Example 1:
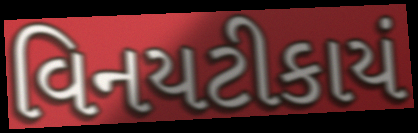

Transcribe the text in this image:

વિનયટીકાયં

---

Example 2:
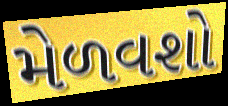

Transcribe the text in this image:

મેળવશો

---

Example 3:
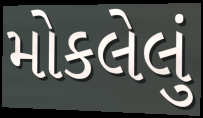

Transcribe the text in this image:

મોકલેલું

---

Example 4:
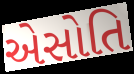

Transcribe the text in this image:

એસોતિ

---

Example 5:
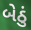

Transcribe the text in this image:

બેઠું